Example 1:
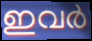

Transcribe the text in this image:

ഇവർ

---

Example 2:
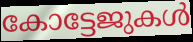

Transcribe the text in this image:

കോട്ടേജുകൾ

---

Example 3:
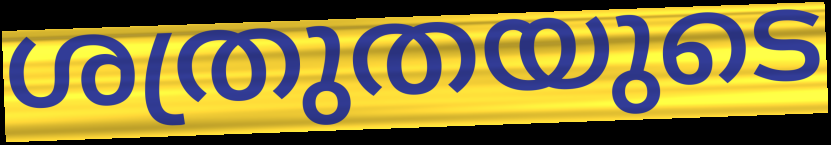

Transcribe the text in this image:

ശത്രുതയുടെ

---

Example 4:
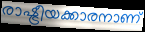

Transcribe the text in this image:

രാഷ്ട്രീയക്കാരനാണ്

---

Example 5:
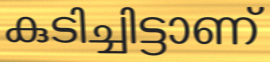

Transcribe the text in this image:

കുടിച്ചിട്ടാണ്